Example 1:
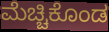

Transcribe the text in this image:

ಮೆಚ್ಚಿಕೊಂಡ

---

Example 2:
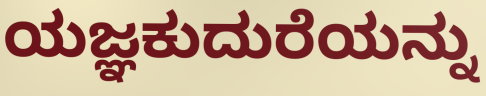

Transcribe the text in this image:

ಯಜ್ಞಕುದುರೆಯನ್ನು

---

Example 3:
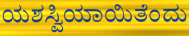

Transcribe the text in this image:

ಯಶಸ್ವಿಯಾಯಿತೆಂದು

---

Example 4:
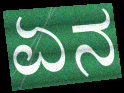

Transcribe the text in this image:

ಏನ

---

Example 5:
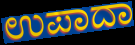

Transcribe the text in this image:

ಉಪಾದಾ